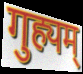
गुह्यम्